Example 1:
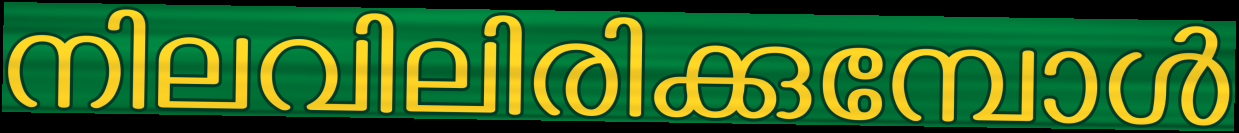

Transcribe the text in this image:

നിലവിലിരിക്കുമ്പോൾ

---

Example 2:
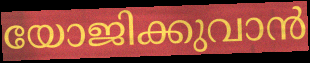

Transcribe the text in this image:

യോജിക്കുവാൻ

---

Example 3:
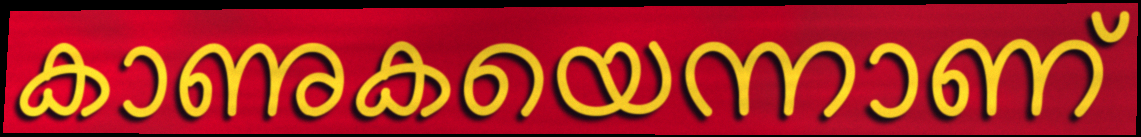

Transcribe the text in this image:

കാണുകയെന്നാണ്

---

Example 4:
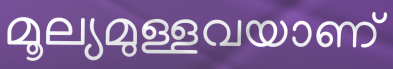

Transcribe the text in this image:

മൂല്യമുള്ളവയാണ്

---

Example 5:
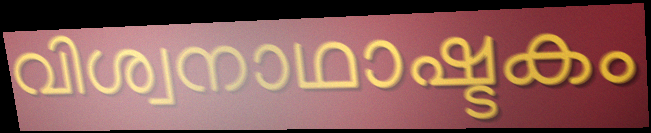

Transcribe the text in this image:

വിശ്വനാഥാഷ്ടകം